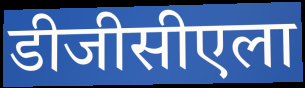
डीजीसीएला